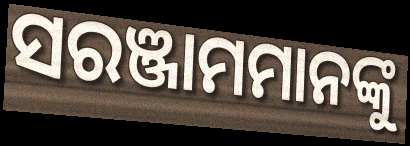
ସରଞ୍ଜାମମାନଙ୍କୁ